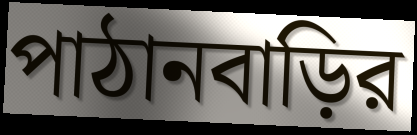
পাঠানবাড়ির